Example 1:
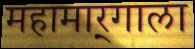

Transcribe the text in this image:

महामार्गाला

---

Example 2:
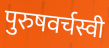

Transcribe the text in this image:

पुरुषवर्चस्वी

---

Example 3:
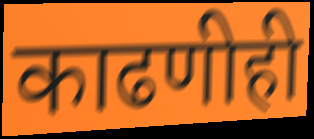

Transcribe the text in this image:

काढणीही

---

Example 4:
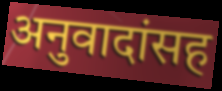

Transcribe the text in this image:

अनुवादांसह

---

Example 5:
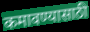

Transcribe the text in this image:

कमावण्यासाठी